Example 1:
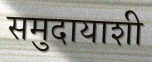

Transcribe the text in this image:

समुदायाशी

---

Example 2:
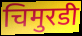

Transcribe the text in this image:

चिमुरडी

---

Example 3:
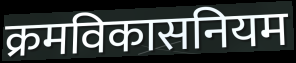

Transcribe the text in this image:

क्रमविकासनियम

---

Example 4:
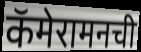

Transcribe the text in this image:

कॅमेरामनची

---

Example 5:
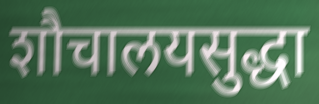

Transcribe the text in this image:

शौचालयसुद्धा